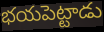
భయపెట్టాడు